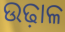
ଉଢ଼ାଳ